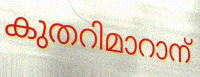
കുതറിമാറാന്